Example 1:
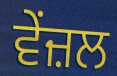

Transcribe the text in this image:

ਵੇਂਜ਼ਲ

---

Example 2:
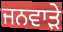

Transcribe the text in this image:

ਜਨਵਾੜੇ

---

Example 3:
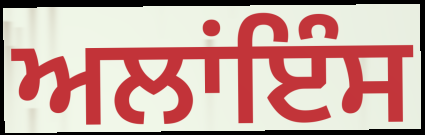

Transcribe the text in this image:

ਅਲਾਂਇੰਸ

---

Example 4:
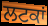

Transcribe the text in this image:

ਲਟਕਾਂ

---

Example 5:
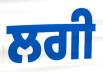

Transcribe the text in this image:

ਲਗੀ